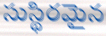
సుస్థిరమైన